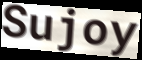
Sujoy